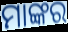
ମାଙ୍କର